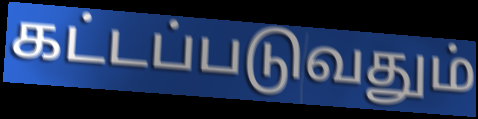
கட்டப்படுவதும்